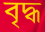
বৃদ্ধ